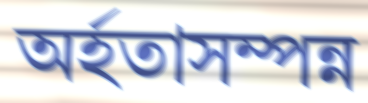
অৰ্হতাসম্পন্ন